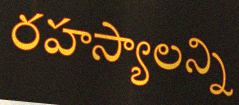
రహస్యాలన్ని